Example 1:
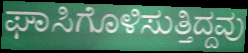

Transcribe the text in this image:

ಘಾಸಿಗೊಳಿಸುತ್ತಿದ್ದವು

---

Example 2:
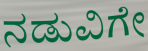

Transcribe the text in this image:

ನಡುವಿಗೇ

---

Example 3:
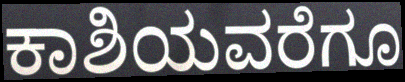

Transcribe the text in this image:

ಕಾಶಿಯವರೆಗೂ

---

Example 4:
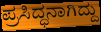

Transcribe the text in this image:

ಪ್ರಸಿದ್ಧನಾಗಿದ್ದು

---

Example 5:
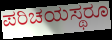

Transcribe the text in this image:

ಪರಿಚಯಸ್ಥರೂ